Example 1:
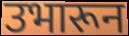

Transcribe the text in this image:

उभारून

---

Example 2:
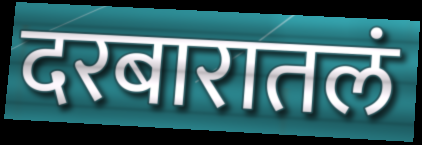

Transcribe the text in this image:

दरबारातलं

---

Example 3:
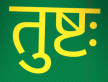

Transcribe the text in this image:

तुष्टः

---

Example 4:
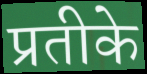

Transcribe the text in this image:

प्रतीके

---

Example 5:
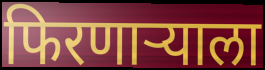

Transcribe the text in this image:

फिरणाऱ्याला